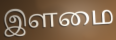
இளமை